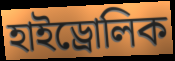
হাইড্রোলিক